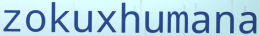
zokuxhumana